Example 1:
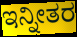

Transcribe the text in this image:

ಇನ್ನೀತರ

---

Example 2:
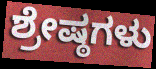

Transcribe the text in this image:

ಶ್ರೇಷ್ಠಗಳು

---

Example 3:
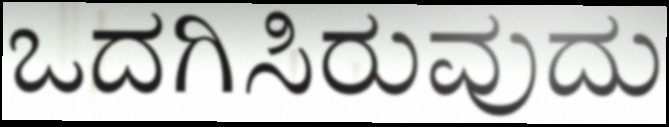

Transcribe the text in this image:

ಒದಗಿಸಿರುವುದು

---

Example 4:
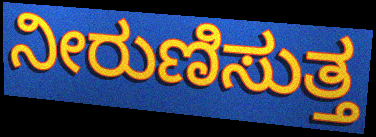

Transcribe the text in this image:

ನೀರುಣಿಸುತ್ತ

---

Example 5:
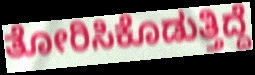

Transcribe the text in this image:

ತೋರಿಸಿಕೊಡುತ್ತಿದ್ದೆ